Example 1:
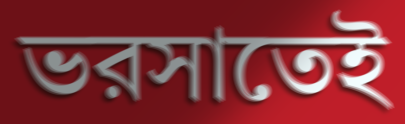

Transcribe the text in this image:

ভরসাতেই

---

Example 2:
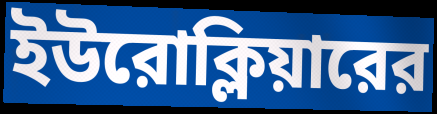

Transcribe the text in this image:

ইউরোক্লিয়ারের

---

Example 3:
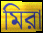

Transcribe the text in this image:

মিরা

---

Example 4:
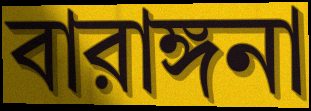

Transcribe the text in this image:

বারাঙ্গনা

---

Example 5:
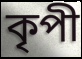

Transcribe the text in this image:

কৃপী